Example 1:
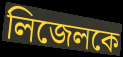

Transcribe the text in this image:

লিজেলকে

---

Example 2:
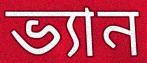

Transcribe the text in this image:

ভ্যান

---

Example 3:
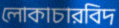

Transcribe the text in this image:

লোকাচারবিদ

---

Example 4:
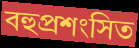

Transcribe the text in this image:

বহুপ্রশংসিত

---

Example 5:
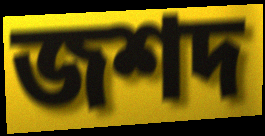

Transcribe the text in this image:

জশদ